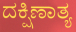
ದಕ್ಷಿಣಾತ್ಯ